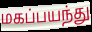
மகப்பயந்து